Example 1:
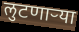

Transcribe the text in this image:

लुटणाऱ्या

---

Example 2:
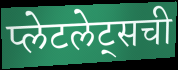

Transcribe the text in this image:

प्लेटलेट्‌सची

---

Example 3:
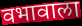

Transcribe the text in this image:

वभावाला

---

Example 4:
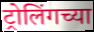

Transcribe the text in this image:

ट्रोलिंगच्या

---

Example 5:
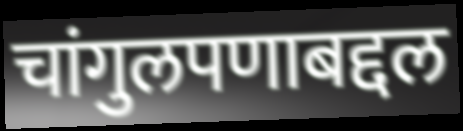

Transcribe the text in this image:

चांगुलपणाबद्दल